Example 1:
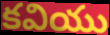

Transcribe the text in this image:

కవియు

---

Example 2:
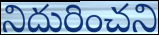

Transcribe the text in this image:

నిదురించని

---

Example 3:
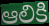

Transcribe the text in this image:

ఆలికి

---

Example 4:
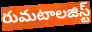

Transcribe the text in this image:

రుమటాలజిస్ట్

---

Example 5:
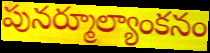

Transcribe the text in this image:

పునర్మూల్యాంకనం